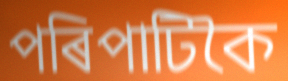
পৰিপাটিকৈ